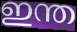
ഇന്ത